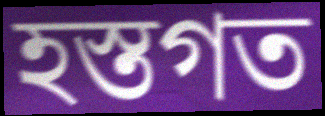
হস্তগত